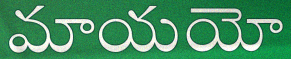
మాయయో